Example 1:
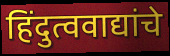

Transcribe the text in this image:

हिंदुत्ववाद्यांचे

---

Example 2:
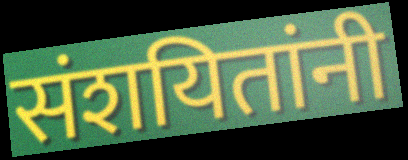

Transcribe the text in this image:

संशयितांनी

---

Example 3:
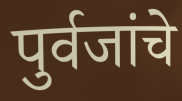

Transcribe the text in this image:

पुर्वजांचे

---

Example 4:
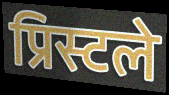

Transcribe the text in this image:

प्रिस्टले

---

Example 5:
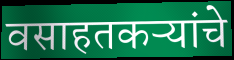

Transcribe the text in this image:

वसाहतकऱ्यांचे